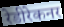
रेडीरेकनर